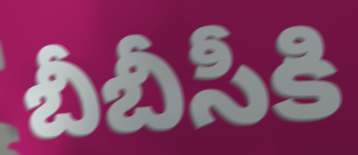
బీబీసీకి